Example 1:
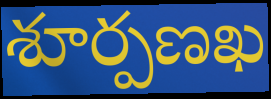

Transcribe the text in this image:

శూర్పణఖ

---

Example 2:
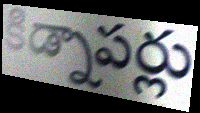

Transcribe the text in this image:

కిడ్నాపర్లు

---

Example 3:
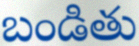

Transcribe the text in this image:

బండితు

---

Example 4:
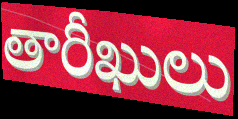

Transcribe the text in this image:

తారీఖులు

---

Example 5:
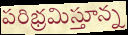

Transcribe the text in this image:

పరిభ్రమిస్తూన్న